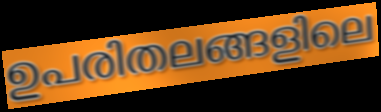
ഉപരിതലങ്ങളിലെ